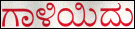
ಗಾಳಿಯಿದು